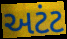
અટંટ